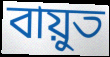
বায়ুত